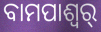
ବାମପାଶ୍ୱର୍